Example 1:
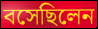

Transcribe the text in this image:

বসেছিলেন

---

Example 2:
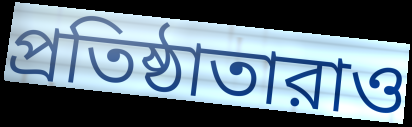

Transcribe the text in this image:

প্রতিষ্ঠাতারাও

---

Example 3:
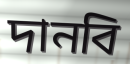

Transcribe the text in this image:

দানবি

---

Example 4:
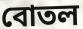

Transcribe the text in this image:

বোতল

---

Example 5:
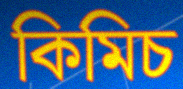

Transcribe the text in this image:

কিমিচ